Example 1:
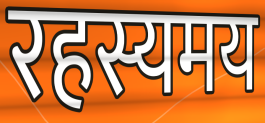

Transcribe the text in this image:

रहस्यमय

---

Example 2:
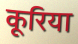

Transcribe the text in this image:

कूरिया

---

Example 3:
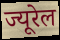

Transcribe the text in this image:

ज्यूरेल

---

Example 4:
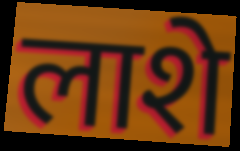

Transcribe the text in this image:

लाशे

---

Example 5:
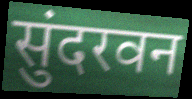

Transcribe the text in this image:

सुंदरवन